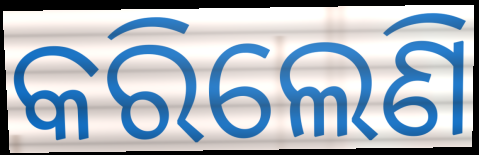
କରିଲେଣି